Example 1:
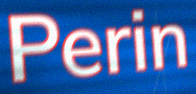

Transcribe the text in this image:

Perin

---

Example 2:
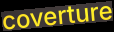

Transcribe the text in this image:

coverture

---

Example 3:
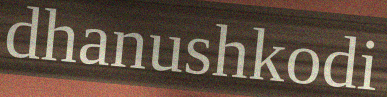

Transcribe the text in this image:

dhanushkodi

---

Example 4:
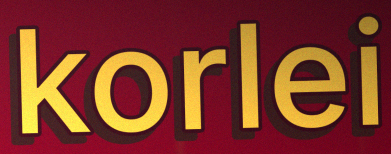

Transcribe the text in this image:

korlei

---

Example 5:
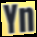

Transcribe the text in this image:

Yn